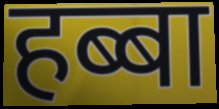
हब्‍बा